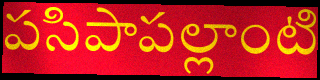
పసిపాపల్లాంటి